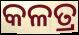
କଳତ୍ର